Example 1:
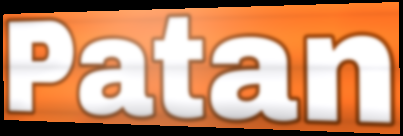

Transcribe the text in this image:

Patan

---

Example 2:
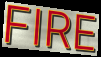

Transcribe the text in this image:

FIRE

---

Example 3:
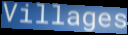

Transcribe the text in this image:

Villages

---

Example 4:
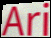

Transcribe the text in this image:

Ari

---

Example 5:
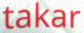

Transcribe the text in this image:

takar